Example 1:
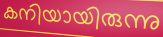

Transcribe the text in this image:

കനിയായിരുന്നു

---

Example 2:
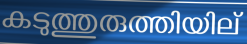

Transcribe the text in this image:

കടുത്തുരുത്തിയില്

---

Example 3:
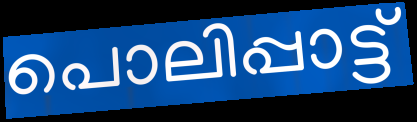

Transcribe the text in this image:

പൊലിപ്പാട്ട്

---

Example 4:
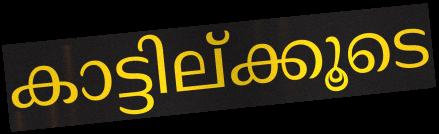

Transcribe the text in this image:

കാട്ടില്ക്കൂടെ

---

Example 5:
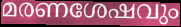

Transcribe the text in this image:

മരണശേഷവും